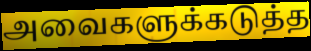
அவைகளுக்கடுத்த